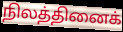
நிலத்தினைக்